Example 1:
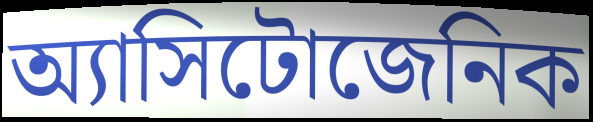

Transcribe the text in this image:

অ্যাসিটোজেনিক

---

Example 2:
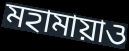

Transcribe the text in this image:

মহামায়াও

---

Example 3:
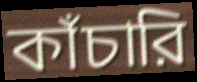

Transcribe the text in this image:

কাঁচারি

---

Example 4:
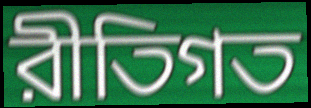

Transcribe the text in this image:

রীতিগত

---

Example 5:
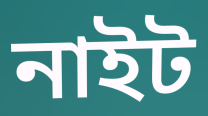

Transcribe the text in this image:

নাইট